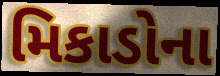
મિકાડોના